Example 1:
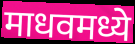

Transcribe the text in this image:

माधवमध्ये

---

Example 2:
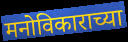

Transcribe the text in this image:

मनोविकाराच्या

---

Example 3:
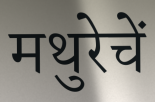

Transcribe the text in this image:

मथुरेचें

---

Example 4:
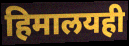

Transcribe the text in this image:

हिमालयही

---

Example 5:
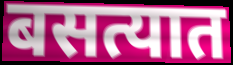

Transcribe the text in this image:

बसत्यात